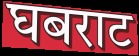
घबराट